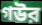
গউর